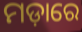
ମଡ଼ାରେ